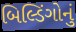
બિલ્ડિંગોનું